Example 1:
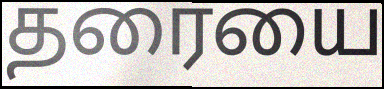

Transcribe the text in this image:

தரையை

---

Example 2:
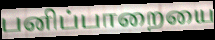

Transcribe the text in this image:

பனிப்பாறையை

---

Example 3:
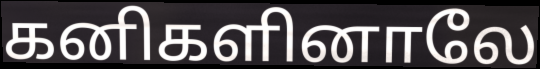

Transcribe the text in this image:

கனிகளினாலே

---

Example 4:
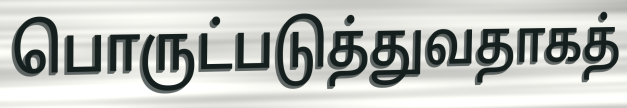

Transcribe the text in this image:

பொருட்படுத்துவதாகத்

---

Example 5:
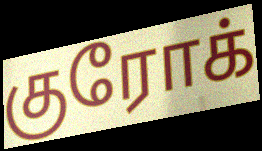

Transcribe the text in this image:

குரோக்